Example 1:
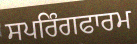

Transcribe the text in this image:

ਸਪਰਿੰਗਫਾਰਮ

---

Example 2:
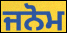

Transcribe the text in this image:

ਜਨੋਮ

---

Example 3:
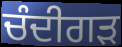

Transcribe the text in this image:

ਚੰਦੀਗੜ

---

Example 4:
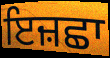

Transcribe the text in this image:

ਇਜ਼ਛਾ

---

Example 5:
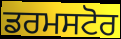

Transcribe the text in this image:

ਡਰਮਸਟੋਰ